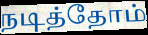
நடித்தோம்